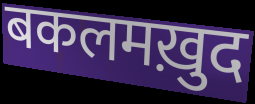
बकलमख़ुद